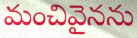
మంచివైనను